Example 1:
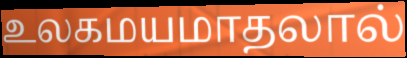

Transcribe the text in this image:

உலகமயமாதலால்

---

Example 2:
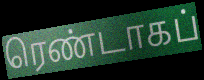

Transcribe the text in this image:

ரெண்டாகப்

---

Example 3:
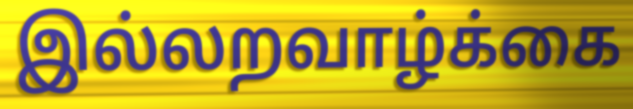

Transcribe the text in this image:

இல்லறவாழ்க்கை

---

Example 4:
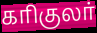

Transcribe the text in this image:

கரிகுலர்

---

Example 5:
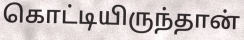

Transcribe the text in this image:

கொட்டியிருந்தான்